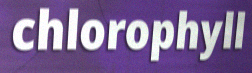
chlorophyll